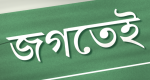
জগতেই